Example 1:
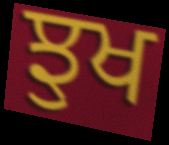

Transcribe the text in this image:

ਝੁਖ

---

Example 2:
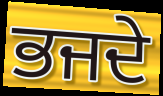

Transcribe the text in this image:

ਭਜਦੇ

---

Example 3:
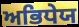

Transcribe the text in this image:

ਅਭਿਧੇਯ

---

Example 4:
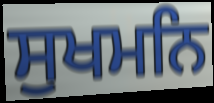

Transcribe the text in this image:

ਸੁਖਮਨਿ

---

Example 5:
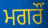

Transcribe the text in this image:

ਮਗਰੌਂ